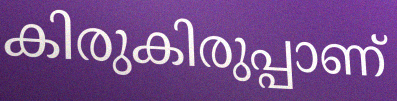
കിരുകിരുപ്പാണ്